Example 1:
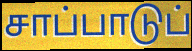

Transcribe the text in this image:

சாப்பாடுப்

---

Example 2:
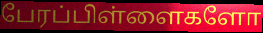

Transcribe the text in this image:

பேரப்பிள்ளைகளோ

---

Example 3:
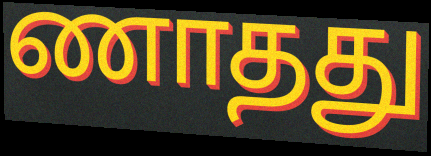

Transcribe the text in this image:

ணாதது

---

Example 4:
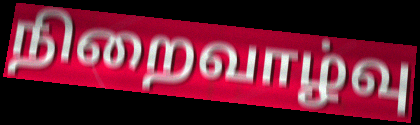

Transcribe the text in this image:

நிறைவாழ்வு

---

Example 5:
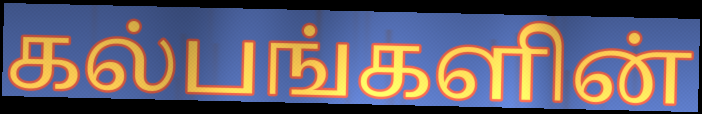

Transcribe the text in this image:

கல்பங்களின்